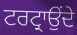
ਟਰਟ੍ਰਾਉਂਦੇ